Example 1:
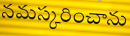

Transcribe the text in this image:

నమస్కరించాను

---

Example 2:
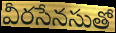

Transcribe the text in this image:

వీరసేనసుతో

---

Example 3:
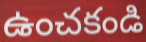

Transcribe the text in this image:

ఉంచకండి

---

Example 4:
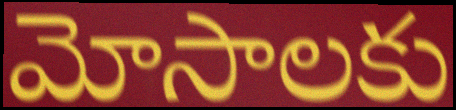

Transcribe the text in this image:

మోసాలకు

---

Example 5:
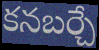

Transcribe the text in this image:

కనబర్చే